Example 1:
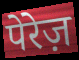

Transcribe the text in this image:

पेरेज़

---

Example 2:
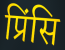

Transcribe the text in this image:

प्रिंसि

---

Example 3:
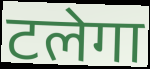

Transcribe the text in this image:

टलेगा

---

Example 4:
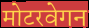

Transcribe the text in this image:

मोटरवेगन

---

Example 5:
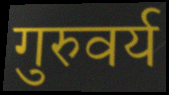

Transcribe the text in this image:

गुरुवर्य